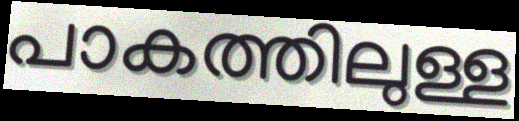
പാകത്തിലുള്ള